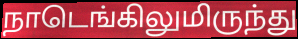
நாடெங்கிலுமிருந்து